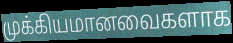
முக்கியமானவைகளாக